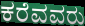
ಕರೆವವರು